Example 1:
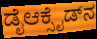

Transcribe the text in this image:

ಡೈಆಕ್ಸೈಡ್‌ನ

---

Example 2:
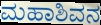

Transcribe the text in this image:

ಮಹಾಶಿವನ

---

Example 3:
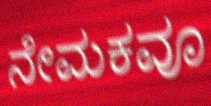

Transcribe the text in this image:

ನೇಮಕವೂ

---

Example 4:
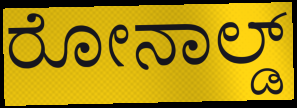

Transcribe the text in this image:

ರೋನಾಲ್ಡ್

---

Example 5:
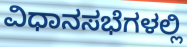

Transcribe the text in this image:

ವಿಧಾನಸಭೆಗಳಲ್ಲಿ